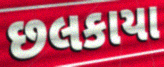
છલકાયા